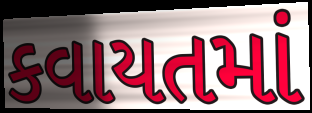
કવાયતમાં